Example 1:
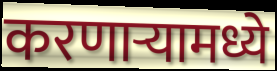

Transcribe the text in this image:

करणाऱ्यामध्ये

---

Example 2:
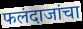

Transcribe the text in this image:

फलंदाजांचा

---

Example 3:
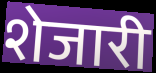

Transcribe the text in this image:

शेजारी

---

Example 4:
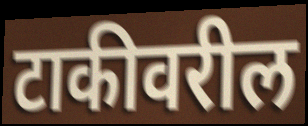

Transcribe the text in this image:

टाकीवरील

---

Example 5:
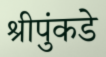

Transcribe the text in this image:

श्रीपुंकडे